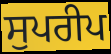
ਸੁਪਰੀਪ